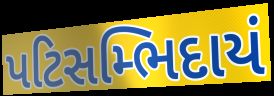
પટિસમ્ભિદાયં